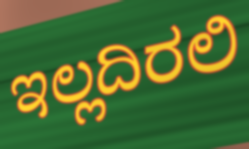
ಇಲ್ಲದಿರಲಿ